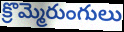
క్రొమ్మెరుంగులు